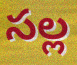
సల్ల